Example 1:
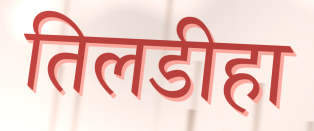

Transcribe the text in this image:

तिलडीहा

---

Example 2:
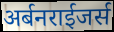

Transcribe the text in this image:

अर्बनराईजर्स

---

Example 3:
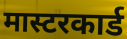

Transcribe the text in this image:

मास्टरकार्ड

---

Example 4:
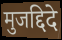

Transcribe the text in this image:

मुजद्दिदे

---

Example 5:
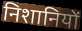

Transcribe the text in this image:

निशानियों